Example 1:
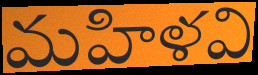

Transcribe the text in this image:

మహిళవి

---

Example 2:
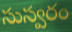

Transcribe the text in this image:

సుస్వరం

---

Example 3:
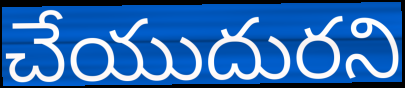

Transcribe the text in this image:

చేయుదురని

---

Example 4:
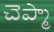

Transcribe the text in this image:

చెప్మా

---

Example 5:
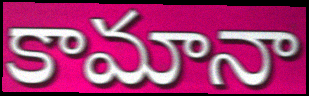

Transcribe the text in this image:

కామానా